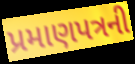
પ્રમાણપત્રની